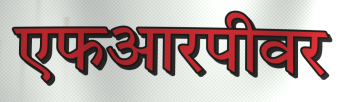
एफआरपीवर